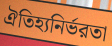
ঐতিহ্যনির্ভরতা